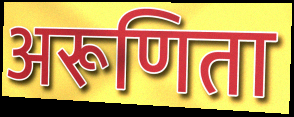
अरूणिता